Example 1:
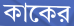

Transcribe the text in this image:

কাকের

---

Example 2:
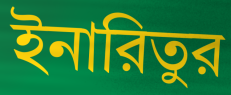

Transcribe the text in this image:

ইনারিতুর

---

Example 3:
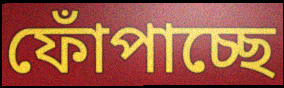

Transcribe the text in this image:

ফোঁপাচ্ছে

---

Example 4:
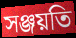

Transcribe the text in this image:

সঞ্জয়তি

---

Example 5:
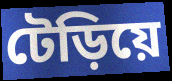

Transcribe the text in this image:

টেড়িয়ে